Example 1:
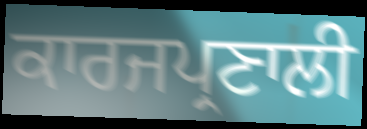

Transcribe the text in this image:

ਕਾਰਜਪ੍ਰਣਾਲੀ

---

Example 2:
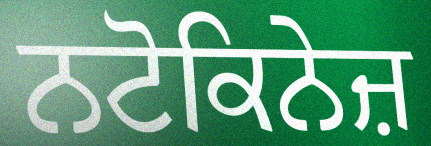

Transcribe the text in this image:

ਨਟੋਕਿਨੇਜ਼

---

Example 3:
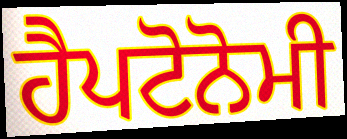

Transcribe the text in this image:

ਹੈਪਟੋਨੋਮੀ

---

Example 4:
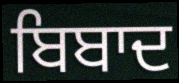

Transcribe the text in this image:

ਬਿਬਾਦ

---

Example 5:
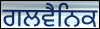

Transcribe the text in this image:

ਗਲਵੈਨਿਕ